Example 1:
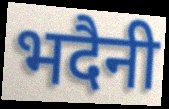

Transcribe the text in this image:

भदैनी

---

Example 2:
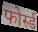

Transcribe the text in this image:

फोर्स्ड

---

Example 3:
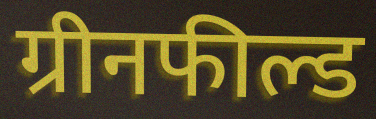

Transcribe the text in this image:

ग्रीनफील्ड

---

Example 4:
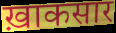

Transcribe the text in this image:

ख़ाकसार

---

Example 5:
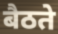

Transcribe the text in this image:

बैठते